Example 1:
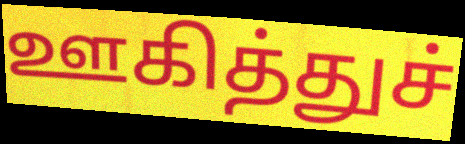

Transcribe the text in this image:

ஊகித்துச்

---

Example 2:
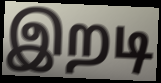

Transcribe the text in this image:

இறடி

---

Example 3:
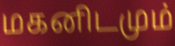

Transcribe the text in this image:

மகனிடமும்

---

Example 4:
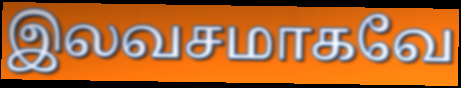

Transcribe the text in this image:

இலவசமாகவே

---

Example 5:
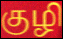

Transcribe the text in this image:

குழி